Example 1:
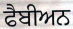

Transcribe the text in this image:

ਫੈਬੀਅਨ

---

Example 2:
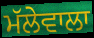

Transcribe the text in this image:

ਮੱਲੇਵਾਲਾ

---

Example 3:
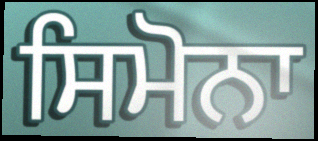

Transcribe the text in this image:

ਸਿਮੋਨਾ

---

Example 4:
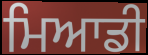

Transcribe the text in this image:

ਮਿਆਡੀ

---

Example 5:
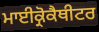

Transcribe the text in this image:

ਮਾਈਕ੍ਰੋਕੈਥੀਟਰ